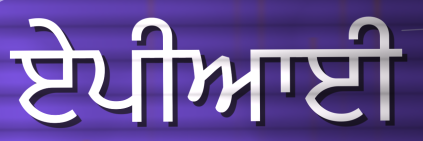
ਏਪੀਆਈ